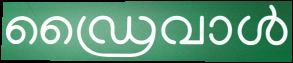
ഡ്രൈവാൾ